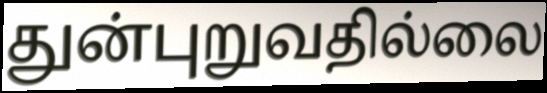
துன்புறுவதில்லை